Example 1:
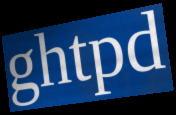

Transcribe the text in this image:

ghtpd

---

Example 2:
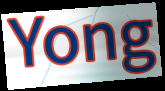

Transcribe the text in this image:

Yong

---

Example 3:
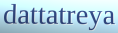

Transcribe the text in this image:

dattatreya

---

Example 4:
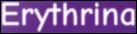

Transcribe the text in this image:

Erythrina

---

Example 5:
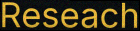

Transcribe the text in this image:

Reseach